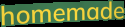
homemade